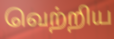
வெற்றிய